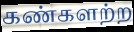
கண்களற்ற